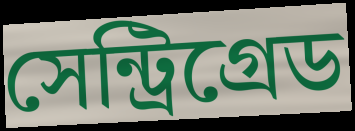
সেন্ট্রিগ্রেড